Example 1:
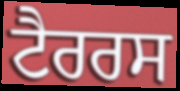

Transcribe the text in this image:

ਟੈਰਰਸ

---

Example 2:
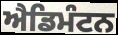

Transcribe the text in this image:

ਐਡਿਮੰਟਨ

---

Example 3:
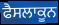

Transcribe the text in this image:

ਫੈਸਲਾਕੂਨ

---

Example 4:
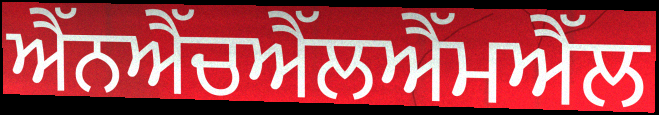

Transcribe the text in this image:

ਐੱਨਐੱਚਐੱਲਐੱਮਐੱਲ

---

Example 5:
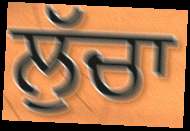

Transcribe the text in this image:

ਲੁੱਚਾ